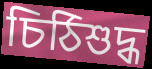
চিঠিশুদ্ধ